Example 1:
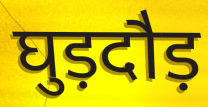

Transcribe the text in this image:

घुड़दौड़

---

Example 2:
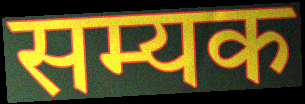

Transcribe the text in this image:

सम्‍यक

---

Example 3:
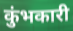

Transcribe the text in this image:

कुंभकारी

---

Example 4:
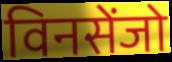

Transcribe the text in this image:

विनसेंजो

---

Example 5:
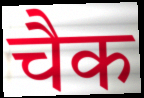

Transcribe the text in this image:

चैक